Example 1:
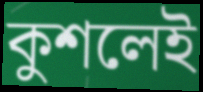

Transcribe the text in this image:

কুশলেই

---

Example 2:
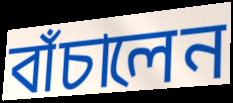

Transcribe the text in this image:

বাঁচালেন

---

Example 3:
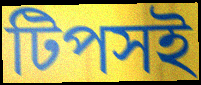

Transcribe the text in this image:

টিপসই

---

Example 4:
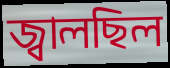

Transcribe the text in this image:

জ্বালছিল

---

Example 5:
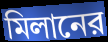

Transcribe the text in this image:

মিলানের